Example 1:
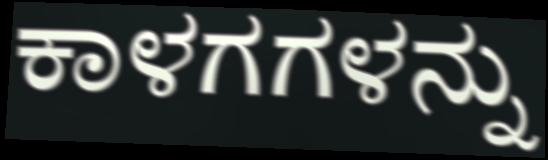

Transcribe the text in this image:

ಕಾಳಗಗಳನ್ನು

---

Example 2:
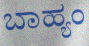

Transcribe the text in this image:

ಬಾಹ್ಯಂ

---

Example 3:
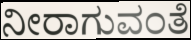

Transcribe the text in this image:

ನೀರಾಗುವಂತೆ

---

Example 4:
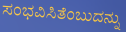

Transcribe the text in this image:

ಸಂಭವಿಸಿತೆಂಬುದನ್ನು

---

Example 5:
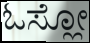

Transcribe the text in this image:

ಓಸ್ಲೋ